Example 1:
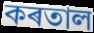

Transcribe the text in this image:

কৰতাল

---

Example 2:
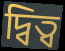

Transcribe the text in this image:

দ্বিত্ব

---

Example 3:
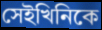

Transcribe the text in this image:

সেইখিনিকে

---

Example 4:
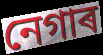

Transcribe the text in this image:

নেগাৰ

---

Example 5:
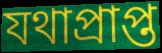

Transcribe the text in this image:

যথাপ্ৰাপ্ত